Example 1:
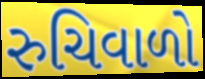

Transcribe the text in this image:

રુચિવાળો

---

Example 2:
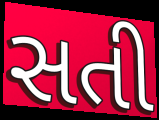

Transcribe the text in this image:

સતી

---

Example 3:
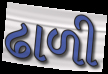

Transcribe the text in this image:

ઢાળી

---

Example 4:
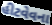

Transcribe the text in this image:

હીટવેવના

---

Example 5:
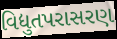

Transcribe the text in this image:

વિદ્યુતપરાસરણ